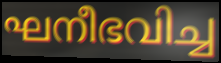
ഘനീഭവിച്ച